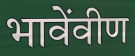
भावेंवीण